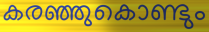
കരഞ്ഞുകൊണ്ടും